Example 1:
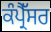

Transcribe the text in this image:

ਕੰਪ੍ਰੈੱਸਰ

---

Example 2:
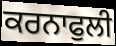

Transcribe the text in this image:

ਕਰਨਾਫੁਲੀ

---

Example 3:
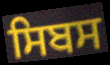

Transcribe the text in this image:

ਸਿਬਸ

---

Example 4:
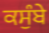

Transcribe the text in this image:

ਕਸੁੰਬੇ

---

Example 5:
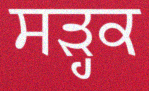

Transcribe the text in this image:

ਸੜ੍ਹਕ